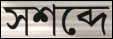
সশব্দে